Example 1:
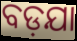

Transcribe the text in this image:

ବଡ଼ଯା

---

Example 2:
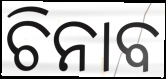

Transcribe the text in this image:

ଚିନାବ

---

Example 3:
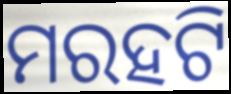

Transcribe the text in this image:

ମରହଟି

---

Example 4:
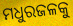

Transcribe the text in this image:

ମଧୁରଜଳକୁ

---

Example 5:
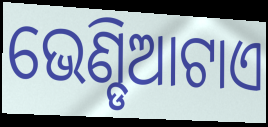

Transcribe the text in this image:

ଭେଣ୍ଡିଆଟାଏ